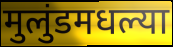
मुलुंडमधल्या